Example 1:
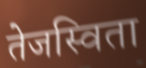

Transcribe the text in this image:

तेजस्विता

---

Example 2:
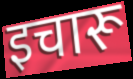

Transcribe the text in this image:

इचारू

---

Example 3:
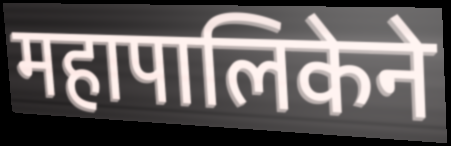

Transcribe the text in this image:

महापालिकेने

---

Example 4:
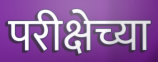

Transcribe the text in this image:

परीक्षेच्या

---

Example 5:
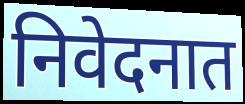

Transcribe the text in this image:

निवेदनात